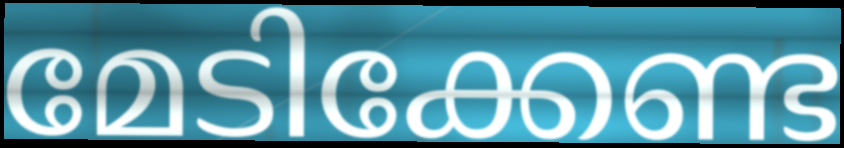
മേടിക്കേണ്ട